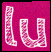
lu